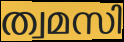
ത്വമസി